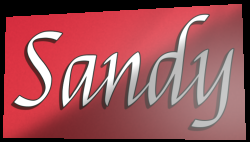
Sandy